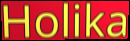
Holika